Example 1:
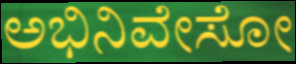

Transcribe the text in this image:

ಅಭಿನಿವೇಸೋ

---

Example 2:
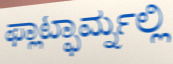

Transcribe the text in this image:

ಫ್ಲಾಟ್ಫಾರ್ಮ್ನಲ್ಲಿ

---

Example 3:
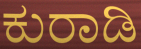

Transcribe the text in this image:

ಕುರಾಡಿ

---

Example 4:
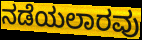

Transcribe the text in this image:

ನಡೆಯಲಾರವು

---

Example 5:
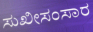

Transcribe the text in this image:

ಸುಖೀಸಂಸಾರ